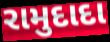
રામુદાદા